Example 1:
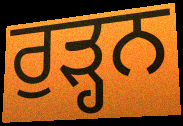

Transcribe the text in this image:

ਰੁੜ੍ਹਨ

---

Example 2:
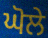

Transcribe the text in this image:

ਘੋਲੇ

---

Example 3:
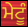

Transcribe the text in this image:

ਮੇਟੂੰ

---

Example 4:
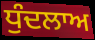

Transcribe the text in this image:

ਧੁੰਦਲਾਅ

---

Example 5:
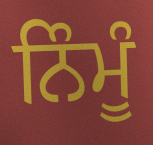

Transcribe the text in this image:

ਨਿੰਮੂੰ